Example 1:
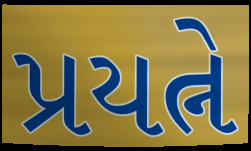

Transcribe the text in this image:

પ્રયત્ને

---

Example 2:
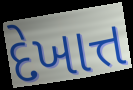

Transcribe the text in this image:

દેખાત્ત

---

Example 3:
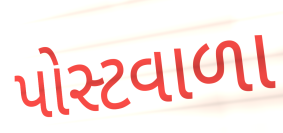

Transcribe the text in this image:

પોસ્ટવાળા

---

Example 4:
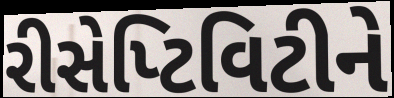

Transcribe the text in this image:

રીસેપ્ટિવિટીને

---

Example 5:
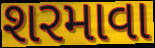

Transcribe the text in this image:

શરમાવા